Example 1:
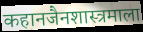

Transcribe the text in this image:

कहानजैनशास्त्रमाला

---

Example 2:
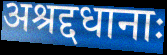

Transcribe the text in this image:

अश्रद्दधानाः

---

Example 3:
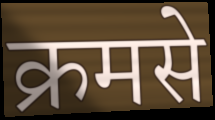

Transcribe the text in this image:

क्रमसे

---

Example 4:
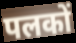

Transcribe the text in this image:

पलकों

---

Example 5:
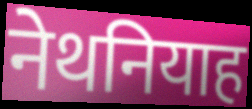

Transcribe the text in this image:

नेथनियाह